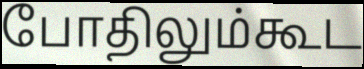
போதிலும்கூட